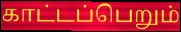
காட்டப்பெறும்